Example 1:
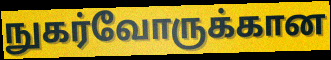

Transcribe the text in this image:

நுகர்வோருக்கான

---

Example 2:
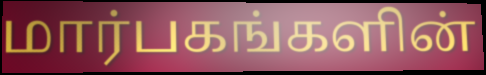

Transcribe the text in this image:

மார்பகங்களின்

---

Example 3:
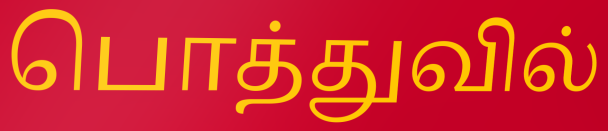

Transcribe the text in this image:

பொத்துவில்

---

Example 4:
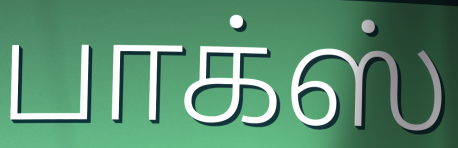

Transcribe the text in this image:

பாக்ஸ்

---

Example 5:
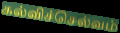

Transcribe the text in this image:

கல்விச்செல்வம்